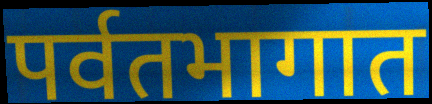
पर्वतभागात